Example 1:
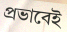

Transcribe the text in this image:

প্রভাবেই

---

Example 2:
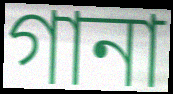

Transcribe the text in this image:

গানা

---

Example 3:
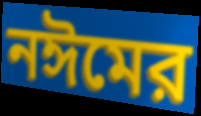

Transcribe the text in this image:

নঈমের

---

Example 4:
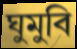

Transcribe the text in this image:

ঘুমুবি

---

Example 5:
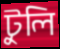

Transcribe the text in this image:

টুলি